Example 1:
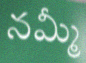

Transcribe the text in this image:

నమ్మీ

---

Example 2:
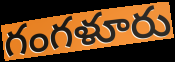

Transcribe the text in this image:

గంగళూరు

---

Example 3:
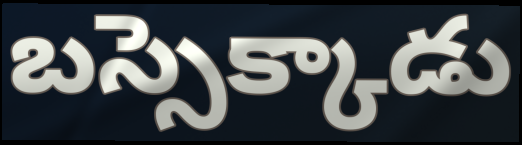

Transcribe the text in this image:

బస్సెక్కాడు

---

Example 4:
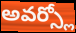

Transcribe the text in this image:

అవర్స్లో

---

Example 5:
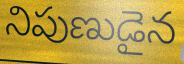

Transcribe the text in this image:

నిపుణుడైన